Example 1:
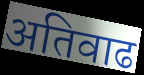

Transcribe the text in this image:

अतिवाढ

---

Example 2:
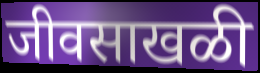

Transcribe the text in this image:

जीवसाखळी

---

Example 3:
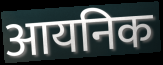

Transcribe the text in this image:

आयनिक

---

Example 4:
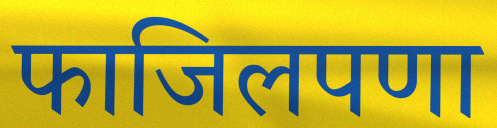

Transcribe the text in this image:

फाजिलपणा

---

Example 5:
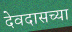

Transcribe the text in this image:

देवदासच्या